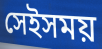
সেইসময়